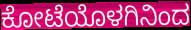
ಕೋಟೆಯೊಳಗಿನಿಂದ